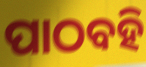
ପାଠବହି